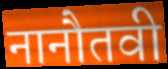
नानौतवी